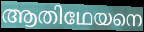
ആതിഥേയനെ